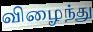
விழைந்து